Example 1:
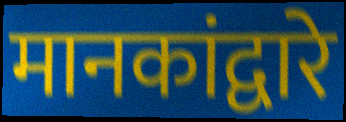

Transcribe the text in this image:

मानकांद्वारे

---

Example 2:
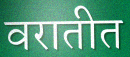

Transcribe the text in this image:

वरातीत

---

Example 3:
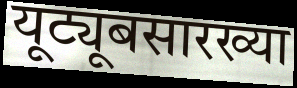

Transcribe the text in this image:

यूट्यूबसारख्या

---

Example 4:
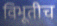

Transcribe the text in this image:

विभूतीच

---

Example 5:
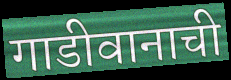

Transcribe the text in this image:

गाडीवानाची